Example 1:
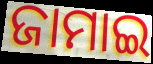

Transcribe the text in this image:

ଜାମାଇ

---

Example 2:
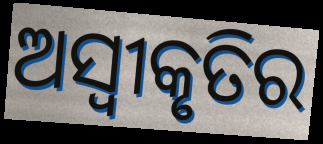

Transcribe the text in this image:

ଅସ୍ୱୀକୃତିର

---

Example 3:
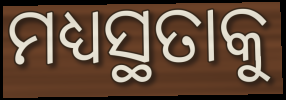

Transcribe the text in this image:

ମଧ୍ୟସ୍ଥତାକୁ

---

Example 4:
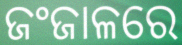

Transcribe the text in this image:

ଜଂଜାଳରେ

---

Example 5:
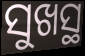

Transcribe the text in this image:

ସୁଖସ୍ଥ